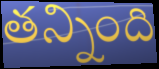
తన్నింది